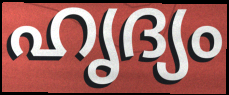
ഹൃദ്യം